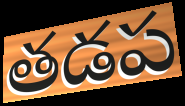
తడప